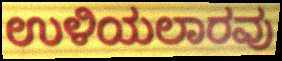
ಉಳಿಯಲಾರವು